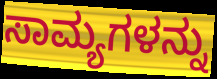
ಸಾಮ್ಯಗಳನ್ನು